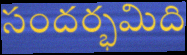
సందర్భమిది